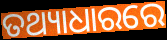
ତଥ୍ୟାଧାରରେ